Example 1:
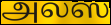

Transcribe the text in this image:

அலஸ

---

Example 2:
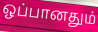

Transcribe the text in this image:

ஒப்பானதும்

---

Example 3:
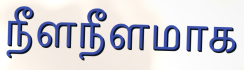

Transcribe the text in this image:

நீளநீளமாக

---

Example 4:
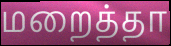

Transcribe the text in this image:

மறைத்தா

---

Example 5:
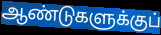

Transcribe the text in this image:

ஆண்டுகளுக்குப்